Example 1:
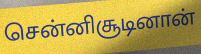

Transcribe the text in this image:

சென்னிசூடினான்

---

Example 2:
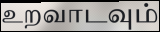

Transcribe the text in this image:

உறவாடவும்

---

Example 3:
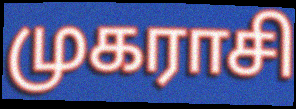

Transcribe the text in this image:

முகராசி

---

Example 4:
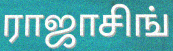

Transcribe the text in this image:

ராஜாசிங்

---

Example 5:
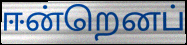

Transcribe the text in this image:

ஈன்றெனப்